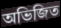
অভিজিত